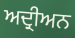
ਅਦ੍ਰੀਅਨ